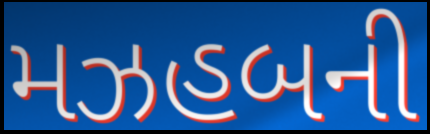
મઝહબની